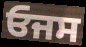
ਓਜਸ